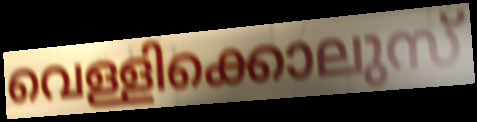
വെള്ളിക്കൊലുസ്